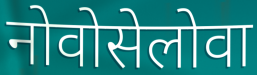
नोवोसेलोवा